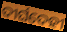
ଦୀର୍ଘଦେହୀ